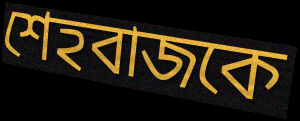
শেহবাজকে